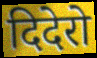
दिदेरो